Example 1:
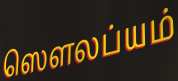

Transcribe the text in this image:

ஸௌலப்யம்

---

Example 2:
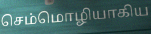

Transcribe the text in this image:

செம்மொழியாகிய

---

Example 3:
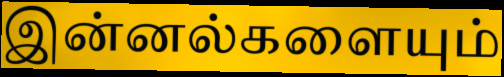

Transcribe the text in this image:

இன்னல்களையும்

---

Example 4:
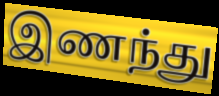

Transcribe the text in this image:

இணந்து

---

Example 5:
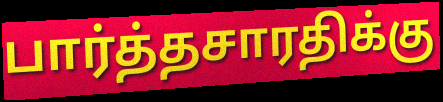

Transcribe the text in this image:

பார்த்தசாரதிக்கு